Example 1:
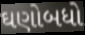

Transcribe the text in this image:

ઘણોબધો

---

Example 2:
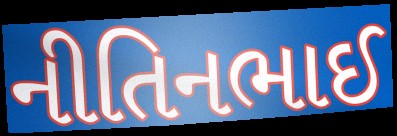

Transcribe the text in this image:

નીતિનભાઈ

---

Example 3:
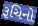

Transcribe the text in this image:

રૂચિનો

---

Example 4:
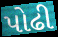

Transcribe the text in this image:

પોઢી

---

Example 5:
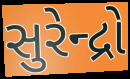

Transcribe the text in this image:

સુરેન્દ્રો